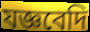
যজ্ঞবেদি